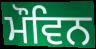
ਮੌਵਿਨ